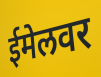
ईमेलवर